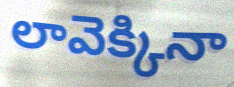
లావెక్కినా